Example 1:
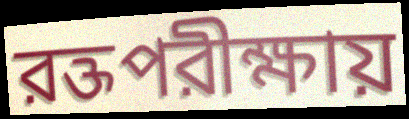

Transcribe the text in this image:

রক্তপরীক্ষায়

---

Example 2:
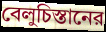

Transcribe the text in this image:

বেলুচিস্তানের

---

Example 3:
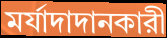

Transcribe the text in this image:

মর্যাদাদানকারী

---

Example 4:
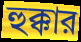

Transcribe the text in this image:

হুক্কার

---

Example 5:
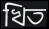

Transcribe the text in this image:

খিত